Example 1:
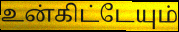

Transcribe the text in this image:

உன்கிட்டேயும்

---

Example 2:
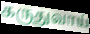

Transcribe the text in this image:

கருதுவாய்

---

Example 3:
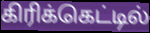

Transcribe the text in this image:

கிரிக்கெட்டில்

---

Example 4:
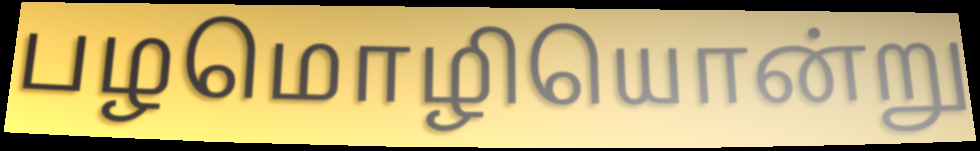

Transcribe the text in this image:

பழமொழியொன்று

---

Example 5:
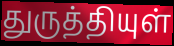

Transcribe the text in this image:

துருத்தியுள்